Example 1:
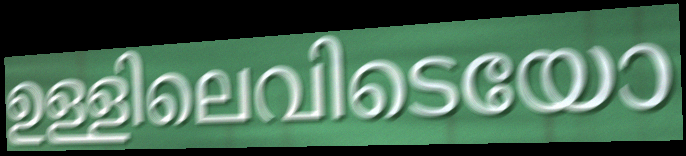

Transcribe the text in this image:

ഉള്ളിലെവിടെയോ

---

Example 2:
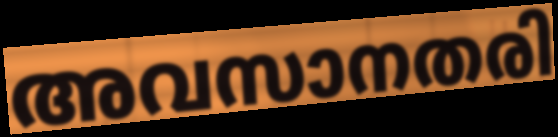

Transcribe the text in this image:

അവസാനതരി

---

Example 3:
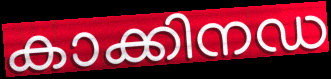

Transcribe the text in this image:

കാക്കിനഡ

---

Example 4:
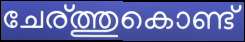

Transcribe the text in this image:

ചേര്ത്തുകൊണ്ട്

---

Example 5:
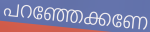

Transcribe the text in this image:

പറഞ്ഞേക്കണേ